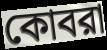
কোবরা